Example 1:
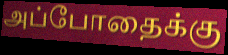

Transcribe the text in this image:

அப்போதைக்கு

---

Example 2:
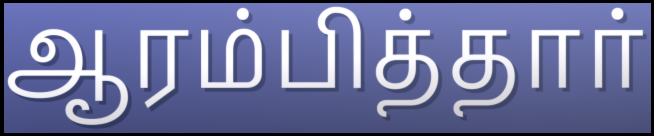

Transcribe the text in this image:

ஆரம்பித்தார்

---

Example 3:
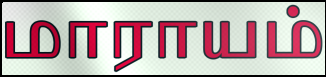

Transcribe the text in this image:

மாராயம்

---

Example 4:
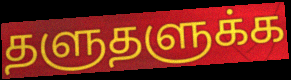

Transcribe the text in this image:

தளுதளுக்க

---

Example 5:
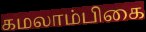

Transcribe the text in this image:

கமலாம்பிகை